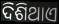
ଦିଶିଥାଏ